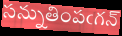
సన్నుతింపఁగన్